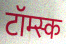
टॉम्स्क